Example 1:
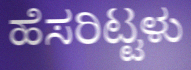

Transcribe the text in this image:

ಹೆಸರಿಟ್ಟಳು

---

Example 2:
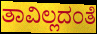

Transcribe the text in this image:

ತಾವಿಲ್ಲದಂತೆ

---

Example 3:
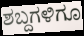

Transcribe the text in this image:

ಶಬ್ದಗಳಿಗೂ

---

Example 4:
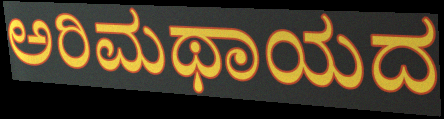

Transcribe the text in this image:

ಅರಿಮಥಾಯದ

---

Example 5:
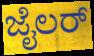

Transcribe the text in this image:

ಜೈಲರ್